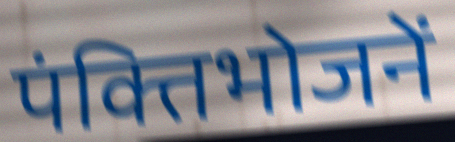
पंक्तिभोजनें